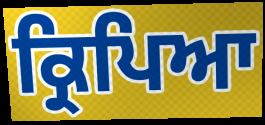
ਕ੍ਰਿਪਿਆ